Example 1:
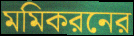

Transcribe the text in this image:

মমিকরনের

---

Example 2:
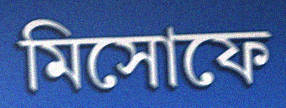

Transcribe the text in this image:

মিসোফে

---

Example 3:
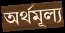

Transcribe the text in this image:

অর্থমূল্য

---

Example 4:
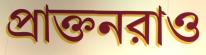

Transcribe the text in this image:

প্রাক্তনরাও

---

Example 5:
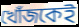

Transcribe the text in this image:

খোঁজকেই